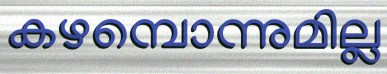
കഴമ്പൊന്നുമില്ല